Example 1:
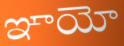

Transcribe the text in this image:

ఞాయో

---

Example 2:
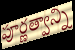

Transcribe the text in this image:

పూర్ణత్వాన్ని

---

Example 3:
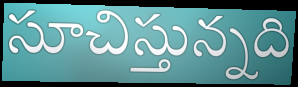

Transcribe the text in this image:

సూచిస్తున్నది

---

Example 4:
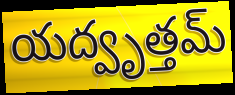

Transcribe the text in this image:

యద్వృత్తమ్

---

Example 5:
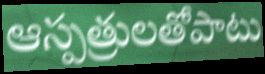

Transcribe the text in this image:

ఆస్పత్రులతోపాటు